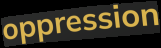
oppression